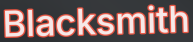
Blacksmith